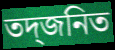
তদ্জনিত